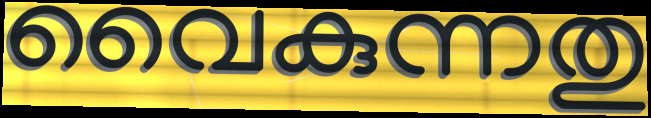
വൈകുന്നതു